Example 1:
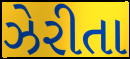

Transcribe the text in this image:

ઝેરીતા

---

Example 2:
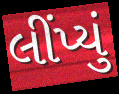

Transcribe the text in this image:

લીંપ્યું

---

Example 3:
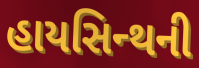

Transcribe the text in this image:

હાયસિન્થની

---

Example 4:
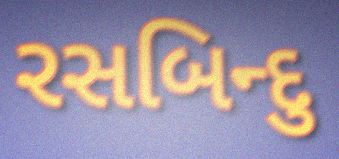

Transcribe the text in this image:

રસબિન્દુ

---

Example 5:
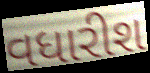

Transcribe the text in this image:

વધારીશ